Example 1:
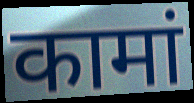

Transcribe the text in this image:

कामां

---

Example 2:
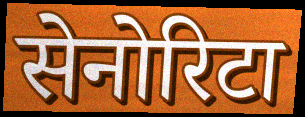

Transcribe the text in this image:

सेनोरिटा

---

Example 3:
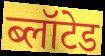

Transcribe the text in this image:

ब्लॉटेड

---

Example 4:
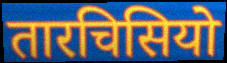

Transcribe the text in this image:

तारचिसियो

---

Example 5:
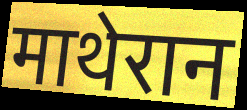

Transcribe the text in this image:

माथेरान